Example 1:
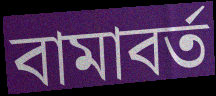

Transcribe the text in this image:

বামাবর্ত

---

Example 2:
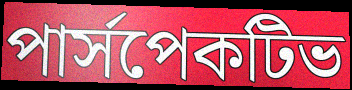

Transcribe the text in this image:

পার্সপেকটিভ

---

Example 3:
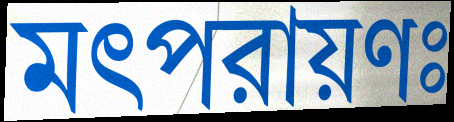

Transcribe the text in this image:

মৎপরায়ণঃ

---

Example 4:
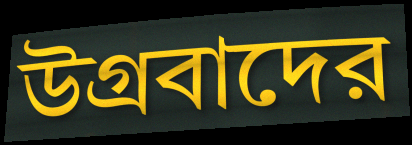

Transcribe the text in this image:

উগ্রবাদের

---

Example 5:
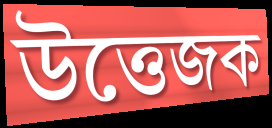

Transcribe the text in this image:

উত্তেজক